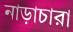
নাড়াচারা